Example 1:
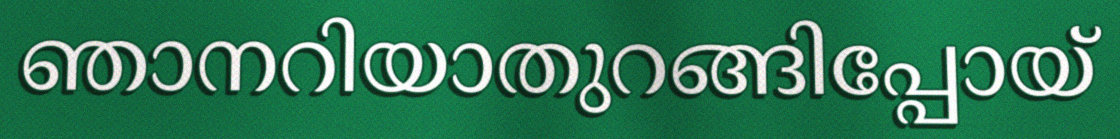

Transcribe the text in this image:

ഞാനറിയാതുറങ്ങിപ്പോയ്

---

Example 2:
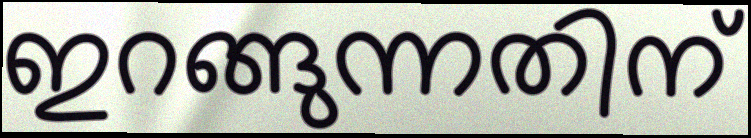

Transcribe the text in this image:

ഇറങ്ങുന്നതിന്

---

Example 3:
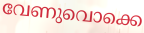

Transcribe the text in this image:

വേണുവൊക്കെ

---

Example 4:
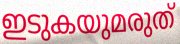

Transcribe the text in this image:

ഇടുകയുമരുത്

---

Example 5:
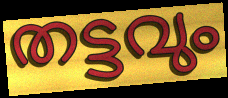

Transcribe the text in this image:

തട്ടവും